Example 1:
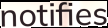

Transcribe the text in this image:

notifies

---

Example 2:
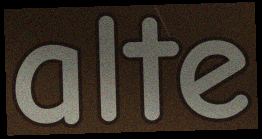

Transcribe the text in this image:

alte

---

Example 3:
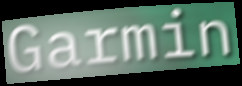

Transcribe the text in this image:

Garmin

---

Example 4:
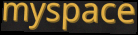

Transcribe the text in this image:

myspace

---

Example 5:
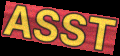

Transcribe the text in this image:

ASST